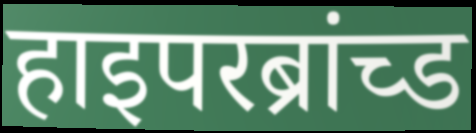
हाइपरब्रांच्ड